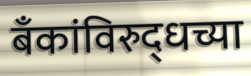
बँकांविरुद्धच्या